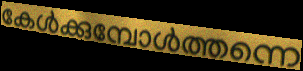
കേൾക്കുമ്പോൾത്തന്നെ